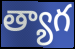
త్యాగ